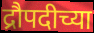
द्रौपदीच्या